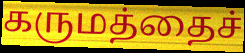
கருமத்தைச்